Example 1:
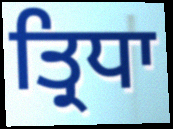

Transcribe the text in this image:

ਤ੍ਰਿਧਾ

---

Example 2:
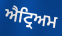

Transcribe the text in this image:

ਐਟ੍ਰਿਅਮ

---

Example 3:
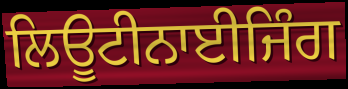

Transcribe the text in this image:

ਲਿਊਟੀਨਾਈਜਿੰਗ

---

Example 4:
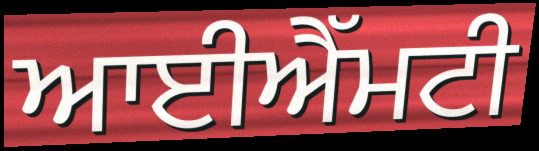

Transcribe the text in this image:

ਆਈਐੱਮਟੀ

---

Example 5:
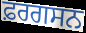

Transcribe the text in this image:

ਫ਼ਰਗਸਨ